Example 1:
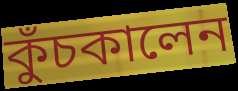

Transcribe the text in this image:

কুঁচকালেন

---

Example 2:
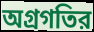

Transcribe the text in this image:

অগ্রগতির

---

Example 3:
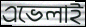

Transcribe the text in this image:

এভেলাই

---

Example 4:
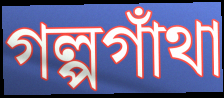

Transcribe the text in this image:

গল্পগাঁথা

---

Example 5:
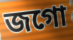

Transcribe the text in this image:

জগো